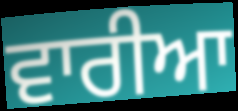
ਵਾਰੀਆ